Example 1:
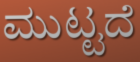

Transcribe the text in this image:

ಮುಟ್ಟದೆ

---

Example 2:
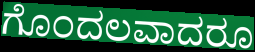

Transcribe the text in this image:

ಗೊಂದಲವಾದರೂ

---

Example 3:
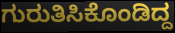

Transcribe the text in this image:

ಗುರುತಿಸಿಕೊಂಡಿದ್ದ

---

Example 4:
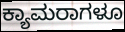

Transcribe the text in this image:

ಕ್ಯಾಮರಾಗಳೂ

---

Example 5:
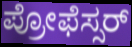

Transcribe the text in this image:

ಪ್ರೋಫೆಸ್ಸರ್